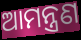
ଆମନ୍ତ୍ରଣ